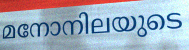
മനോനിലയുടെ